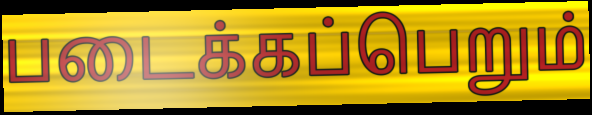
படைக்கப்பெறும்